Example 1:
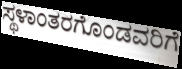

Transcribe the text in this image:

ಸ್ಥಳಾಂತರಗೊಂಡವರಿಗೆ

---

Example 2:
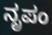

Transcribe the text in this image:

ನೃಪಂ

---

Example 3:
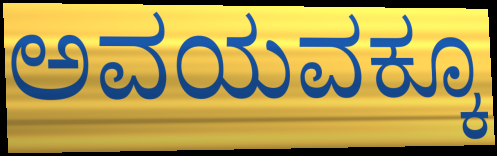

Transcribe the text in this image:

ಅವಯವಕ್ಕೂ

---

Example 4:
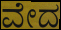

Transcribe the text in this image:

ವೇದ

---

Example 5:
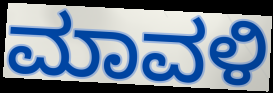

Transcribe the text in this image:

ಮಾವಳಿ